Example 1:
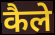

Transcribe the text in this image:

कैले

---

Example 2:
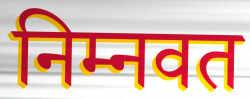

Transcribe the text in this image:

निम्नवत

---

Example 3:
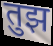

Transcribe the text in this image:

तुझ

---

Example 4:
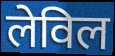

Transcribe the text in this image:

लेविल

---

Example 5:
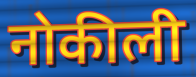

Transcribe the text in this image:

नोकीली